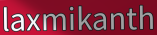
laxmikanth